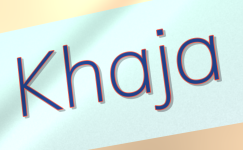
Khaja